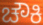
ಚೌಕಿ